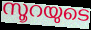
സൂറയുടെ